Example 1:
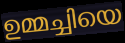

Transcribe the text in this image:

ഉമ്മച്ചിയെ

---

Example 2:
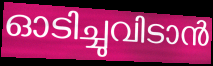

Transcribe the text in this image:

ഓടിച്ചുവിടാൻ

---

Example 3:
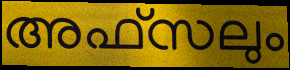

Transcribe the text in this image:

അഫ്സലും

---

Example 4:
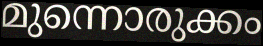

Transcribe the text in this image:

മുന്നൊരുക്കം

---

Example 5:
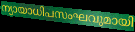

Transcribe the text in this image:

ന്യായാധിപസംഘവുമായി